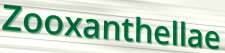
Zooxanthellae